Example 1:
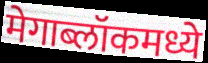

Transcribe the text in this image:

मेगाब्लॉकमध्ये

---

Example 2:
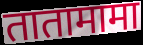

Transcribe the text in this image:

तातामामा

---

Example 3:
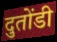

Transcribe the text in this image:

दुतोंडी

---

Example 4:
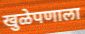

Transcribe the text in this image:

खुळेपणाला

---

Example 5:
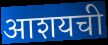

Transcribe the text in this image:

आशयची